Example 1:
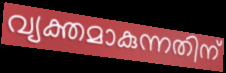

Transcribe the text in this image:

വ്യക്തമാകുന്നതിന്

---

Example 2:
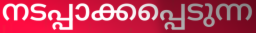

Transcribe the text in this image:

നടപ്പാക്കപ്പെടുന്ന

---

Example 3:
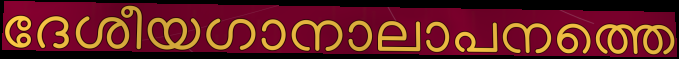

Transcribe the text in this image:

ദേശീയഗാനാലാപനത്തെ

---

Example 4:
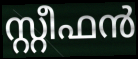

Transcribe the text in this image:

സ്റ്റീഫൻ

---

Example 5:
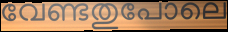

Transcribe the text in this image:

വേണ്ടതുപോലെ